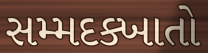
સમ્મદક્ખાતો